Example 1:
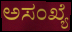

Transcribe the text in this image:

ಅಸಂಖ್ಯೆ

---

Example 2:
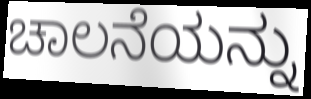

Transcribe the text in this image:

ಚಾಲನೆಯನ್ನು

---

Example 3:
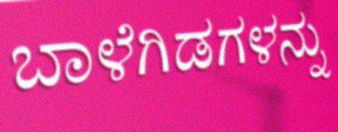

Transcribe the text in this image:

ಬಾಳೆಗಿಡಗಳನ್ನು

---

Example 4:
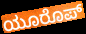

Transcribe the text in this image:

ಯೂರೊಪ್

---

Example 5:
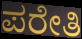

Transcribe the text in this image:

ಪರೇತಿ